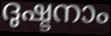
ദുഷ്ടനാം